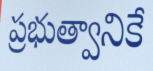
ప్రభుత్వానికే